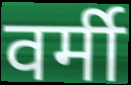
वर्मी